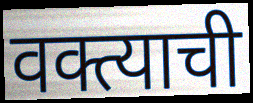
वक्त्याची